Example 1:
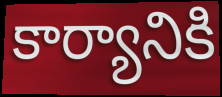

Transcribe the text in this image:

కార్యానికి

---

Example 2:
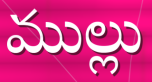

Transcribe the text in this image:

ముల్లు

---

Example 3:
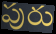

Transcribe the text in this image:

పురు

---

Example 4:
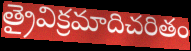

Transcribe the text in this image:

త్రైవిక్రమాదిచరితం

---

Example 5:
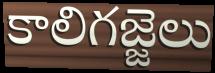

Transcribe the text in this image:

కాలిగజ్జెలు